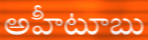
అహీటూబు